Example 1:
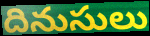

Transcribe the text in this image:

దినుసులు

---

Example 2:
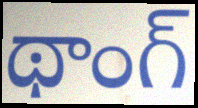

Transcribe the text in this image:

థాంగ్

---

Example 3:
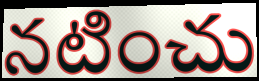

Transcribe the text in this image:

నటించు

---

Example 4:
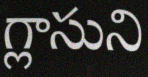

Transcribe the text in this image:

గ్లాసుని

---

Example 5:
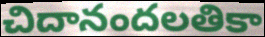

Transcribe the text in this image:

చిదానందలతికా